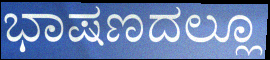
ಭಾಷಣದಲ್ಲೂ